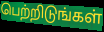
பெற்றிடுங்கள்